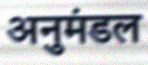
अनुमंडल